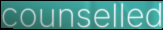
counselled